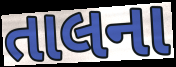
તાલના